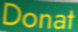
Donat